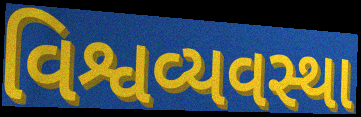
વિશ્વવ્યવસ્થા